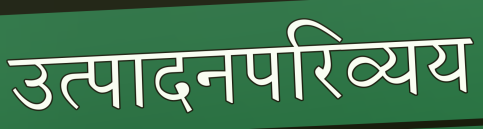
उत्पादनपरिव्यय